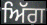
ਅਿੱਗ